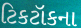
ટિકટૉકના